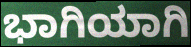
ಭಾಗಿಯಾಗಿ